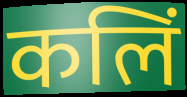
कलिं